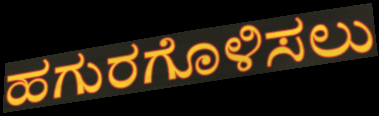
ಹಗುರಗೊಳಿಸಲು